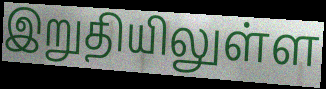
இறுதியிலுள்ள